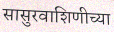
सासुरवाशिणीच्या